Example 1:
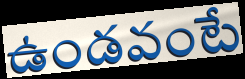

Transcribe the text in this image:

ఉండవంటే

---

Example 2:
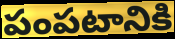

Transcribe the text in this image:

పంపటానికి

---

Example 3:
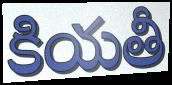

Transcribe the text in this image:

కియతీ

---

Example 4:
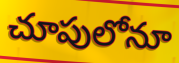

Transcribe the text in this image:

చూపులోనూ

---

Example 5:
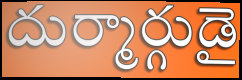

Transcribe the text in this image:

దుర్మార్గుడై